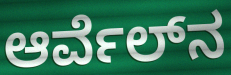
ಆರ್ವೆಲ್‍ನ